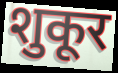
शुकूर